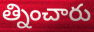
త్నించారు